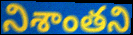
నిశాంతని